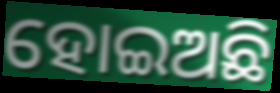
ହୋଇଅଛି